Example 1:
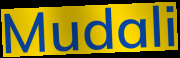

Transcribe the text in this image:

Mudali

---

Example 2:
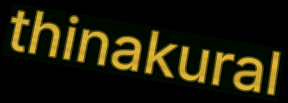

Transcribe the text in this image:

thinakural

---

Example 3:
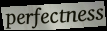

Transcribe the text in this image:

perfectness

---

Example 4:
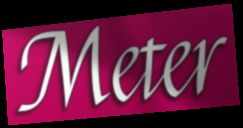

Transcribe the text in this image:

Meter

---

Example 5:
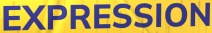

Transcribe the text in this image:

EXPRESSION